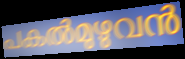
പകൽമുഴുവൻ